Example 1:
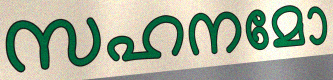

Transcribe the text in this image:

സഹനമോ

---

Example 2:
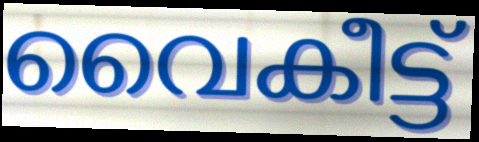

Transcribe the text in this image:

വൈകീട്ട്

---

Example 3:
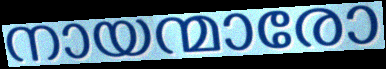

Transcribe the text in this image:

നായന്മാരോ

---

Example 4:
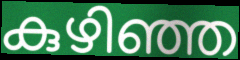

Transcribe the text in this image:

കുഴിഞ്ഞ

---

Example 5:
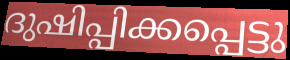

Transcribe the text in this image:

ദുഷിപ്പിക്കപ്പെട്ടു